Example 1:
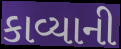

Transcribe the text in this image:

કાવ્યાની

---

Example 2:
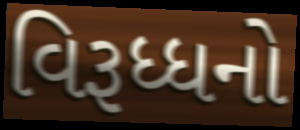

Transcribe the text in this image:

વિરૂધ્ધનો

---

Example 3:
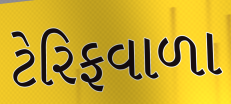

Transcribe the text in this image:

ટેરિફવાળા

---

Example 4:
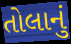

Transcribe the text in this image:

તોલાનું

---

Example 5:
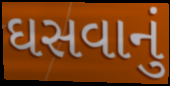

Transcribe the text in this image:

ઘસવાનું